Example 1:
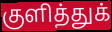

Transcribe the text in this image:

குளித்துக்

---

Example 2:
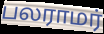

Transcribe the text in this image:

பலராமர்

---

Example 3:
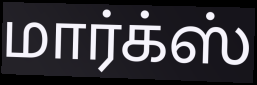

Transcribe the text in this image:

மார்க்ஸ்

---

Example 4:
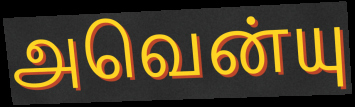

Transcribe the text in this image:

அவென்யு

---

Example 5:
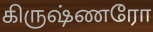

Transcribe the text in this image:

கிருஷ்ணரோ